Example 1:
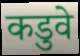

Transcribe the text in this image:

कडुवे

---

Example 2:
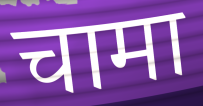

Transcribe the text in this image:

चामा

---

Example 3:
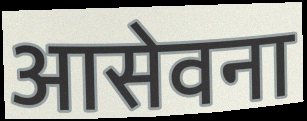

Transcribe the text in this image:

आसेवना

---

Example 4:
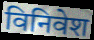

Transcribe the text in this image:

विनिवेश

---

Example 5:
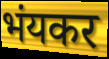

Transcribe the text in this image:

भंयकर